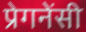
प्रेगनेंसी